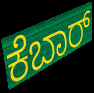
ಕೆಬಾರ್